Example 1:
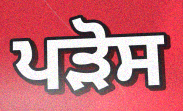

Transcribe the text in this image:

ਪੜੋਸ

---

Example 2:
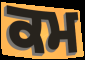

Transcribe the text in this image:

ਕਮ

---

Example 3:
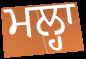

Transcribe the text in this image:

ਮਲ੍ਹਾ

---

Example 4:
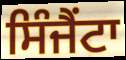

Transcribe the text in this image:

ਸਿੰਜੈਂਟਾ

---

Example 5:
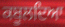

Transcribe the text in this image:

ਕਬੂਲਦਿਆ